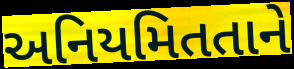
અનિયમિતતાને